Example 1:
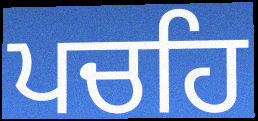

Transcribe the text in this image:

ਪਚਹਿ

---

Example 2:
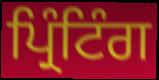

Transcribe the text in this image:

ਪ੍ਰਿੰਟਿੰਗ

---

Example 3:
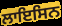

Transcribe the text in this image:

ਲਾਇਸਿਨ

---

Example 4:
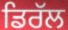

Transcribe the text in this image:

ਡਿਰੱਲ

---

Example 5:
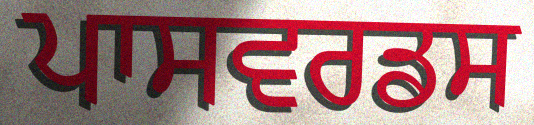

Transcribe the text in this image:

ਪਾਸਵਰਡਸ